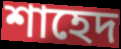
শাহেদ